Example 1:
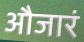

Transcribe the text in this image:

औजारं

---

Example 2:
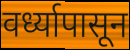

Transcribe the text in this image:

वर्ध्यापासून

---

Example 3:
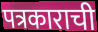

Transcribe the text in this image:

पत्रकाराची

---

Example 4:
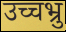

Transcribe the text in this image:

उच्चभ्रु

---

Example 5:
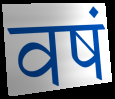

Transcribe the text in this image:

वषं